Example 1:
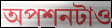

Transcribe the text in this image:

অপশনটাও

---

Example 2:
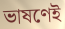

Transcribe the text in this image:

ভাষণেই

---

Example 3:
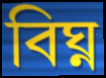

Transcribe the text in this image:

বিঘ্ন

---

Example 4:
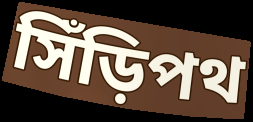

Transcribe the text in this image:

সিঁড়িপথ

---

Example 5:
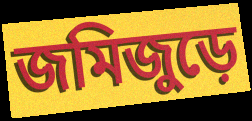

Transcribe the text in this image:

জমিজুড়ে